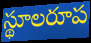
స్థూలరూప